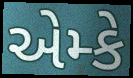
એમ્કે